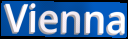
Vienna